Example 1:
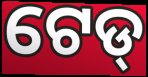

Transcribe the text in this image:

ଟେଡ୍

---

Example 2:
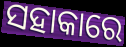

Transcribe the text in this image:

ସହାକାରେ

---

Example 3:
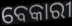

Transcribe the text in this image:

ବେକାରୀ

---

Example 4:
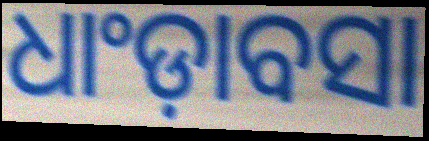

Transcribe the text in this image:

ଧାଂଡ଼ାବସା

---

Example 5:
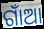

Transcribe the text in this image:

ଗାଁଆ